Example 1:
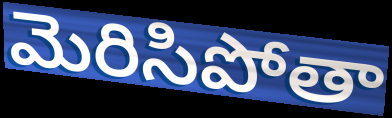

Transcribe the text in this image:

మెరిసిపోతా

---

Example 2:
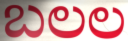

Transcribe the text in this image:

బలల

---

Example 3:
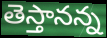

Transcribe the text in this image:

తెస్తానన్న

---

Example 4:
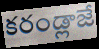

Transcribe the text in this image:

కరండ్లాజే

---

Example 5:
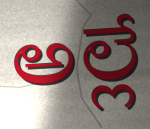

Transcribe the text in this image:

అల్లే